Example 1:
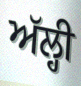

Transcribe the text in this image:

ਅੱਲ੍ਹੀ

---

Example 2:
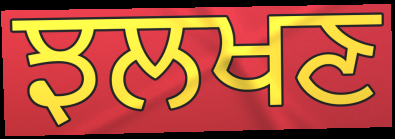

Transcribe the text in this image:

ਝਲਖਣ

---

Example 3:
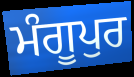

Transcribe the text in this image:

ਮੰਗੂਪੁਰ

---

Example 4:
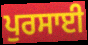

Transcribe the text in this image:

ਪੁਰਸਾਈ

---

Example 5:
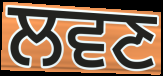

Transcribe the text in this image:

ਲਵਣ